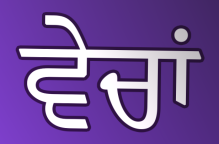
ਵੇਚਾਂ